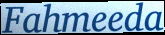
Fahmeeda